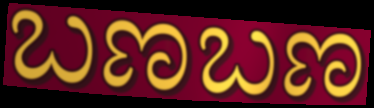
ಬಣಬಣ